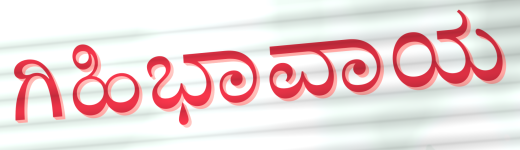
ಗಿಹಿಭಾವಾಯ